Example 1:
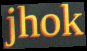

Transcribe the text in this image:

jhok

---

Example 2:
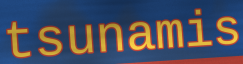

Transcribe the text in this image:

tsunamis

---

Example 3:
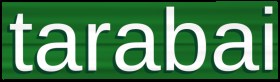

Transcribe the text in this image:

tarabai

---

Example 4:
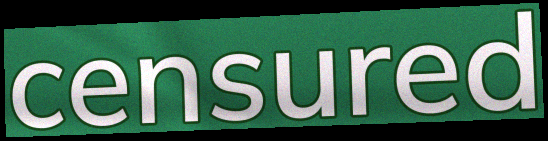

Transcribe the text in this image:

censured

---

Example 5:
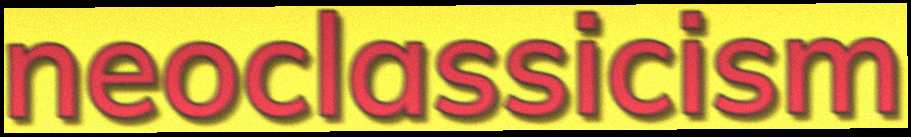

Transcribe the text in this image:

neoclassicism